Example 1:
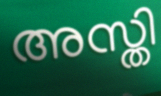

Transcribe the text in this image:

അസ്തി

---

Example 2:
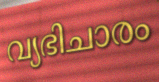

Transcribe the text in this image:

വ്യഭിചാരം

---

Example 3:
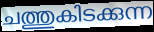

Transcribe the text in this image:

ചത്തുകിടക്കുന്ന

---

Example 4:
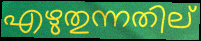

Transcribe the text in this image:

എഴുതുന്നതില്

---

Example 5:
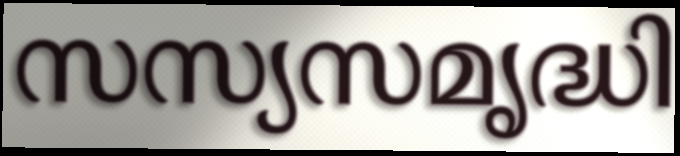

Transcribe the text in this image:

സസ്യസമൃദ്ധി